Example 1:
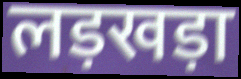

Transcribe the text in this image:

लड़खड़ा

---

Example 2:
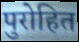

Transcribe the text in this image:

पुरोहित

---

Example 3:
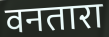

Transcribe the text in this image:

वनतारा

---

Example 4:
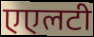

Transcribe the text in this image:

एएलटी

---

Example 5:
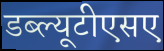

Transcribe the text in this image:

डब्ल्यूटीएसए